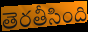
తెరతీసింది